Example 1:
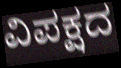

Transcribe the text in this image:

ವಿಪಕ್ಷದ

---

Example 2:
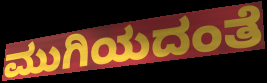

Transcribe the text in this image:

ಮುಗಿಯದಂತೆ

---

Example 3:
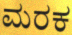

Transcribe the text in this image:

ಮರಕ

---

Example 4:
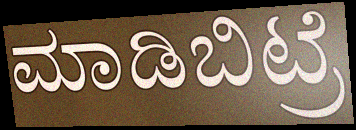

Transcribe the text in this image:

ಮಾಡಿಬಿಟ್ರೆ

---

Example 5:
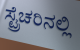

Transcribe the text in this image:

ಸ್ಟ್ರೆಚರಿನಲ್ಲಿ